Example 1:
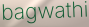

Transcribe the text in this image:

bagwathi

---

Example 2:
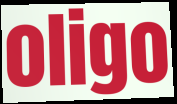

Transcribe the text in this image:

oligo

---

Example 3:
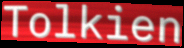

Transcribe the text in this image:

Tolkien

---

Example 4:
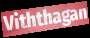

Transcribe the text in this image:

Viththagan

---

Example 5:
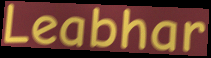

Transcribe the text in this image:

Leabhar